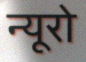
न्यूरो